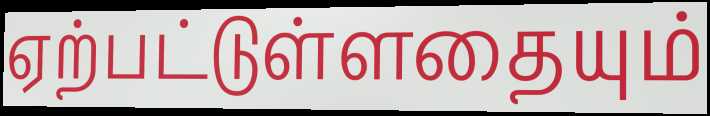
ஏற்பட்டுள்ளதையும்